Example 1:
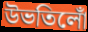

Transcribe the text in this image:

উভতিলোঁ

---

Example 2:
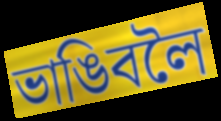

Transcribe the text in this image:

ভাঙিবলৈ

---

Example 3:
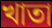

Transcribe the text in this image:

খাতা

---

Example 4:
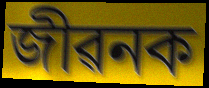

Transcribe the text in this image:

জীৱনক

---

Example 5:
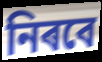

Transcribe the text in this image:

নিৰবে